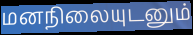
மனநிலையுடனும்